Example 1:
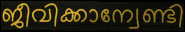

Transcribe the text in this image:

ജീവിക്കാന്വേണ്ടി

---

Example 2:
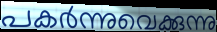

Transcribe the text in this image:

പകർന്നുവെക്കുന്നു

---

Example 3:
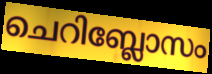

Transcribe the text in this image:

ചെറിബ്ലോസം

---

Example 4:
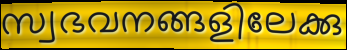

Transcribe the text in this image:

സ്വഭവനങ്ങളിലേക്കു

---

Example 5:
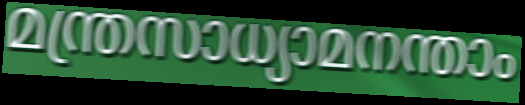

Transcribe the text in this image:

മന്ത്രസാധ്യാമനന്താം